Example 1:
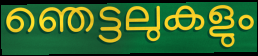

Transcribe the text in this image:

ഞെട്ടലുകളും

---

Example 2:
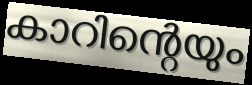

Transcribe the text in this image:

കാറിന്റെയും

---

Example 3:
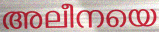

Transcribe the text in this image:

അലീനയെ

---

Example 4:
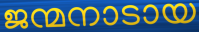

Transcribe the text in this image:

ജന്മനാടായ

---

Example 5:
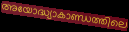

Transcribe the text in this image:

അയോദ്ധ്യാകാണ്ഡത്തിലെ